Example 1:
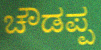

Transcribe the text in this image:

ಚೌಡಪ್ಪ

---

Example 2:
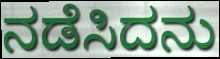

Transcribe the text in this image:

ನಡೆಸಿದನು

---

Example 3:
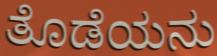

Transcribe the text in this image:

ತೊಡೆಯನು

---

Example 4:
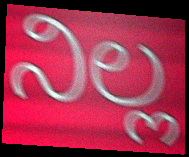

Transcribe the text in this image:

ನಿಲ್ಲ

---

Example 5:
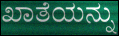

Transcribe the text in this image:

ಖಾತೆಯನ್ನು